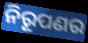
ନିରୂପଣର